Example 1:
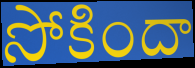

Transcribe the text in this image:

సోకిందా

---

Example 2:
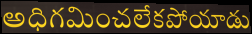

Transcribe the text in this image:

అధిగమించలేకపోయాడు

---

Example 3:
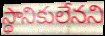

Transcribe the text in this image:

స్థానికులేనని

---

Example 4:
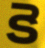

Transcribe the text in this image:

కె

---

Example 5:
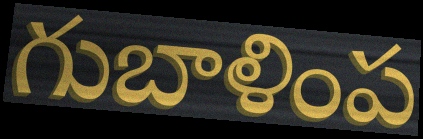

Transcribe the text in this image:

గుబాళింప